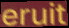
eruit